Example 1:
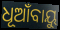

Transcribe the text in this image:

ଧୂଆଁବାୟୁ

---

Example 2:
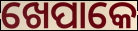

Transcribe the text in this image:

ଖେପାକେ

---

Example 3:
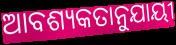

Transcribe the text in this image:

ଆବଶ୍ୟକତାନୁଯାୟୀ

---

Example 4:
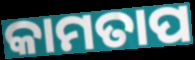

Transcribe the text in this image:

କାମତାପ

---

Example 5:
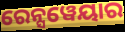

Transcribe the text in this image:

ରେନ୍ସୱେୟାର